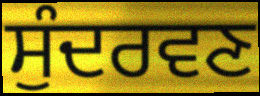
ਸੁੰਦਰਵਣ